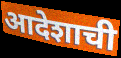
आदेशाची